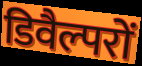
डिवैल्परों